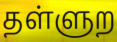
தள்ளுற